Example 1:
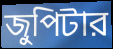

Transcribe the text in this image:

জুপিটার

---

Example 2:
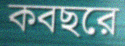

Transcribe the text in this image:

কবছরে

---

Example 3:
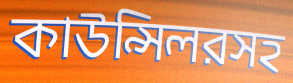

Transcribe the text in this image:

কাউন্সিলরসহ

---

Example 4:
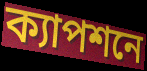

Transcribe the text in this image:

ক্যাপশনে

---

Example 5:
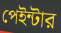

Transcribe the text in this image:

পেইন্টার